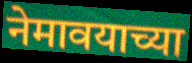
नेमावयाच्या